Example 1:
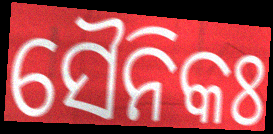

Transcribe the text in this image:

ସୈନିକଃ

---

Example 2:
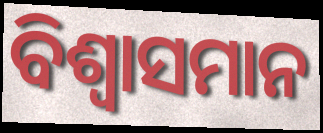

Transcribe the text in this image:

ବିଶ୍ଵାସମାନ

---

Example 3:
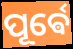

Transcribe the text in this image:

ପୂର୍ଵେ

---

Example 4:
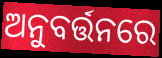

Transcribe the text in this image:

ଅନୁବର୍ତ୍ତନରେ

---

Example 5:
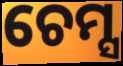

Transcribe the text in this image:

ଚେମ୍ସ